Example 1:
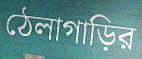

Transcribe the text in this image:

ঠেলাগাড়ির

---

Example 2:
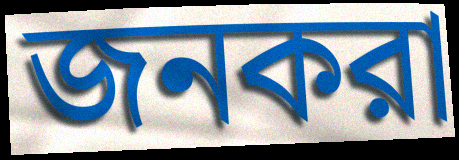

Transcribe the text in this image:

জনকরা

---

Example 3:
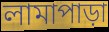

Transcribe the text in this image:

লামাপাড়া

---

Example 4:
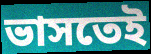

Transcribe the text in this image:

ভাসতেই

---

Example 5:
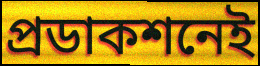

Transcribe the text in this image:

প্রডাকশনেই